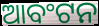
ଆବଂଟନ